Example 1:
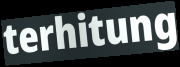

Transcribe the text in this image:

terhitung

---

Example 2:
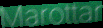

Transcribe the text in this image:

Marottar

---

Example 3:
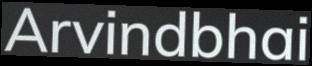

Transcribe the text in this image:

Arvindbhai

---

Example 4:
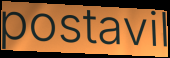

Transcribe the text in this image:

postavil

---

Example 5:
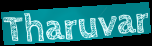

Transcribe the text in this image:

Tharuvar